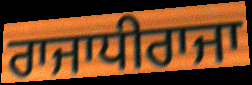
ਰਾਜਾਧੀਰਾਜਾ